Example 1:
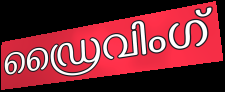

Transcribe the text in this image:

ഡ്രൈവിംഗ്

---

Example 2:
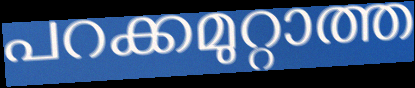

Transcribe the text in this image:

പറക്കമുറ്റാത്ത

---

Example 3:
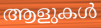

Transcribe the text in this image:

ആളുകൾ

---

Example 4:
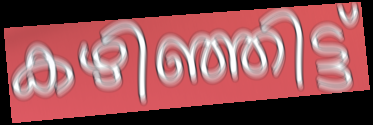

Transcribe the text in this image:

കഴിഞ്ഞിട്ട്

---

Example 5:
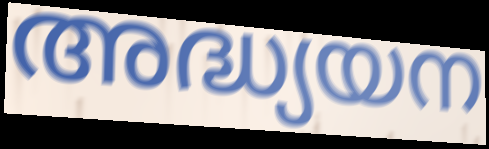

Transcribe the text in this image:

അദ്ധ്യയന